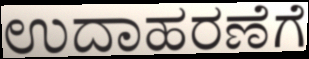
ಉದಾಹರಣೆಗೆ